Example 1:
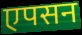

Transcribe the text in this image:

एपसन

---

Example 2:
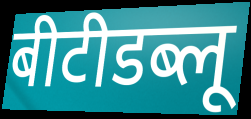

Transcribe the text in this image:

बीटीडब्लू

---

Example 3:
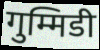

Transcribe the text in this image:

गुम्मिडी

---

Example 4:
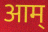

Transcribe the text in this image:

आम्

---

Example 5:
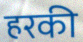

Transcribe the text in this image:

हरकी